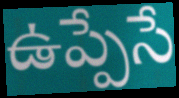
ఉప్పేసే